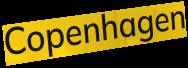
Copenhagen